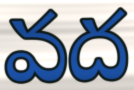
వద